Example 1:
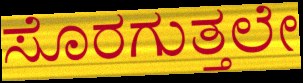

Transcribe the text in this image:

ಸೊರಗುತ್ತಲೇ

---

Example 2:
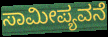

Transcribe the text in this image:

ಸಾಮೀಪ್ಯವನೆ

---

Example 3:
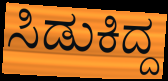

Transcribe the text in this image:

ಸಿಡುಕಿದ್ದ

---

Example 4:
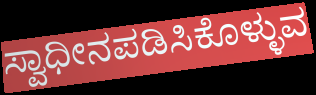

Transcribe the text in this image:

ಸ್ವಾಧೀನಪಡಿಸಿಕೊಳ್ಳುವ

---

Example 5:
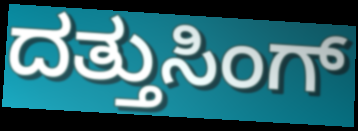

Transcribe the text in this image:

ದತ್ತುಸಿಂಗ್